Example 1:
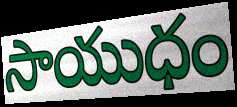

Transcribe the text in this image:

సాయుధం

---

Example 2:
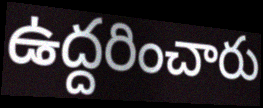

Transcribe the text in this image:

ఉద్దరించారు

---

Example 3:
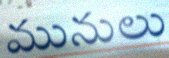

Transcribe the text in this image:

మునులు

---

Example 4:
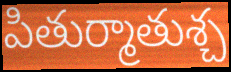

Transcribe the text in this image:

పితుర్మాతుశ్చ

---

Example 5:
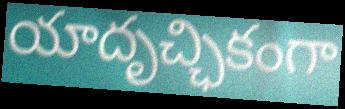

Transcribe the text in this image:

యాదృచ్ఛికంగా